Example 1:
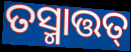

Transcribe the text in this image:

ତସ୍ମାତ୍ତତ୍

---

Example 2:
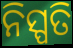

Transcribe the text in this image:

ନିସ୍ପତି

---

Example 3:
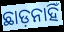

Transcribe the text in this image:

ଛାଡ଼ନାହିଁ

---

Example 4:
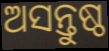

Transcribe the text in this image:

ଅସନ୍ତୁଷ୍ଠ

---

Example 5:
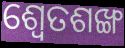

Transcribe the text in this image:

ଶ୍ୱେତଶଙ୍ଖ